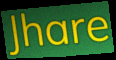
Jhare